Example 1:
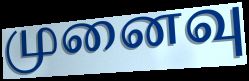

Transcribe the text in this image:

முனைவு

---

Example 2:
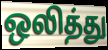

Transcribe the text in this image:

ஒலித்து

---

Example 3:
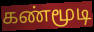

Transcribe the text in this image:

கண்மூடி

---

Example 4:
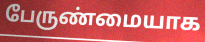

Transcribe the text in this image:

பேருண்மையாக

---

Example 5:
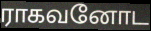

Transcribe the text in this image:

ராகவனோட